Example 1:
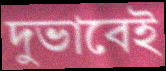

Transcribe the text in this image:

দুভাবেই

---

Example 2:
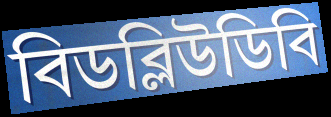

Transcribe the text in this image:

বিডব্লিউডিবি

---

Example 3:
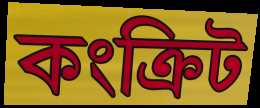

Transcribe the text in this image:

কংক্রিট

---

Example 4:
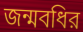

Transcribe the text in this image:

জন্মবধির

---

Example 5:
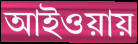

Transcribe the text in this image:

আইওয়ায়